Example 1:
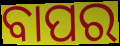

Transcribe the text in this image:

ବାପର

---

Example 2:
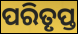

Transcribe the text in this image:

ପରିତୃପ୍ତ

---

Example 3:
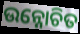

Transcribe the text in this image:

ଉନ୍ନୋଚିତ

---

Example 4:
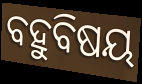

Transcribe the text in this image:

ବହୁବିଷୟ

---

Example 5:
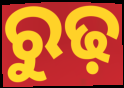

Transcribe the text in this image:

ରୁଢ଼